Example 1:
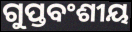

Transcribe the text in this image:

ଗୁପ୍ତବଂଶୀୟ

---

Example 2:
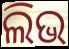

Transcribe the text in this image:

ଲିଭ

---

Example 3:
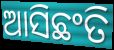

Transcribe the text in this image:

ଆସିଛଂତି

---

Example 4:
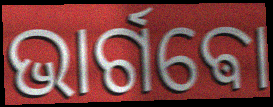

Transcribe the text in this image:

ଭାର୍ଗଵୋ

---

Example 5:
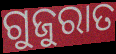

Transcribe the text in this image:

ଗୁଜୁରାତ